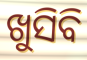
ଖୁସିବି